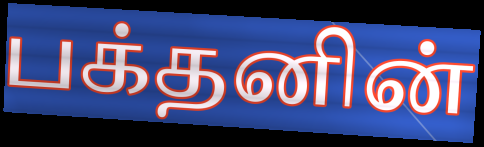
பக்தனின்